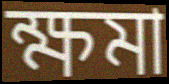
ক্ষমা